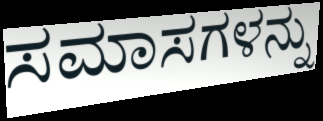
ಸಮಾಸಗಳನ್ನು